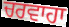
ਚਰਵਾਹਾ